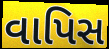
વાપિસ